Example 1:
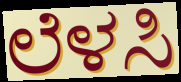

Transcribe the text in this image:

ಲೆಳಸಿ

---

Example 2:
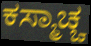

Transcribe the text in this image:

ಕಸ್ಮಾಚ್ಚ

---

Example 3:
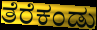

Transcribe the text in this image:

ತೆರೆಕಂಡು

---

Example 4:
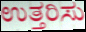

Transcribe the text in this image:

ಉತ್ತರಿಸು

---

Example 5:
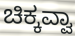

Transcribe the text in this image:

ಚಿಕ್ಕವ್ವಾ